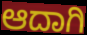
ಆದಾಗಿ